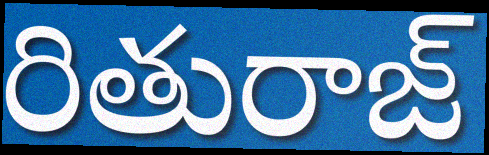
రితురాజ్